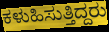
ಕಳುಹಿಸುತ್ತಿದ್ದರು